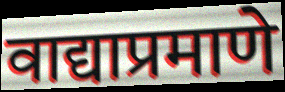
वाद्याप्रमाणे